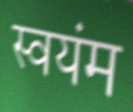
स्वयंम